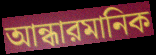
আন্ধারমানিক